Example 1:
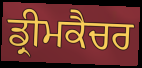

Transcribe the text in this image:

ਡ੍ਰੀਮਕੈਚਰ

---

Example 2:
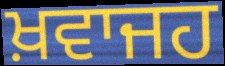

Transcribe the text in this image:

ਖ਼ਵਾਜਹ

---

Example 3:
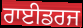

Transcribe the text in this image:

ਰਾਈਡਰਜ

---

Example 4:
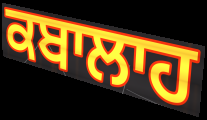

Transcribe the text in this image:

ਕਬਾਲਾਹ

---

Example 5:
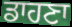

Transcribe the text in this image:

ਡਾਹਣਾ